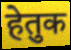
हेतुक